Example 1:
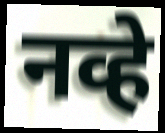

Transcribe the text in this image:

नव्हे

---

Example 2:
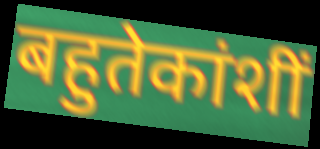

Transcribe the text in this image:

बहुतेकांशीं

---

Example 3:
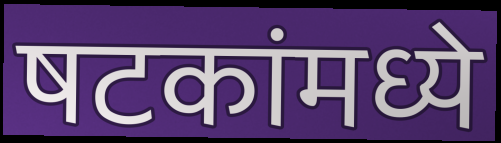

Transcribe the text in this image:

षटकांमध्ये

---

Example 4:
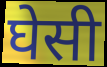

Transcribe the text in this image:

घेसी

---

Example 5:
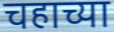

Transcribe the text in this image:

चहाच्या